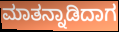
ಮಾತನ್ನಾಡಿದಾಗ